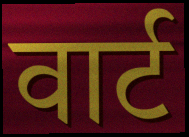
वार्ट